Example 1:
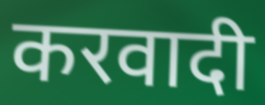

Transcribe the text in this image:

करवादी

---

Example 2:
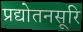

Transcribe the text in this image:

प्रद्योतनसूरि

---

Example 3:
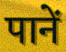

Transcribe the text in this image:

पानें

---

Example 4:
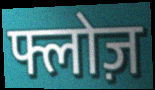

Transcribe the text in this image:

फ्लोज़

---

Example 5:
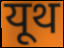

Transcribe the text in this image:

यूथ